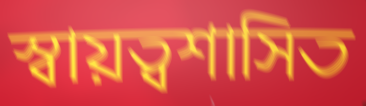
স্বায়ত্বশাসিত